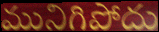
మునిగిపోదు